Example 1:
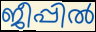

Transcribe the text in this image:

ജീപ്പിൽ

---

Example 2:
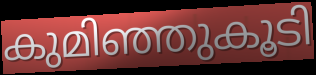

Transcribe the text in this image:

കുമിഞ്ഞുകൂടി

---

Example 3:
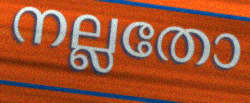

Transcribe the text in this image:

നല്ലതോ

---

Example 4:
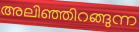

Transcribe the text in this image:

അലിഞ്ഞിറങ്ങുന്ന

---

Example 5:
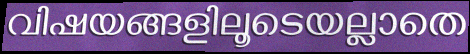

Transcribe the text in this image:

വിഷയങ്ങളിലൂടെയല്ലാതെ